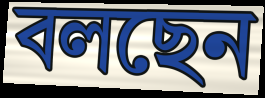
বলছেন